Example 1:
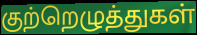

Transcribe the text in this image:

குற்றெழுத்துகள்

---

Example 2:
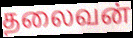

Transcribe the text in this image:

தலைவன்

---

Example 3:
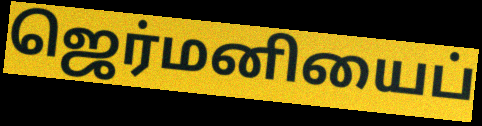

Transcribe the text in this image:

ஜெர்மனியைப்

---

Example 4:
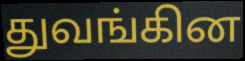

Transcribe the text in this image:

துவங்கின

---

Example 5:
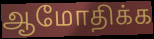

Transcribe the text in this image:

ஆமோதிக்க